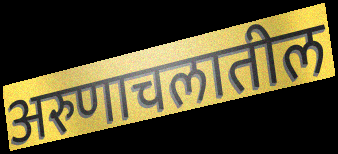
अरुणाचलातील